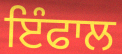
ਇੰਫਾਲ